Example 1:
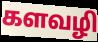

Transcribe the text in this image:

களவழி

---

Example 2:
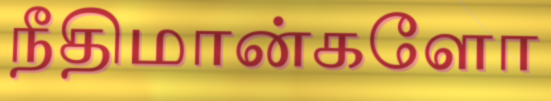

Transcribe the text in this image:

நீதிமான்களோ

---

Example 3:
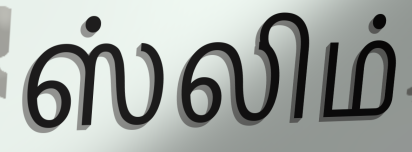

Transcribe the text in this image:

ஸ்லிம்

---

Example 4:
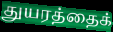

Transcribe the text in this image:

துயரத்தைக்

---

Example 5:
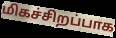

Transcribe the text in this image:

மிகச்சிறப்பாக